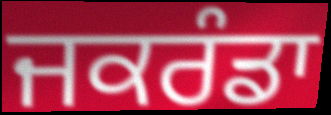
ਜਕਰੰਡਾ